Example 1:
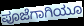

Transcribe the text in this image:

ಪೂಜೆಗಾಗಿಯೂ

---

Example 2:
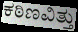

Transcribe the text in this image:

ಕಠಿಣವಿತ್ತು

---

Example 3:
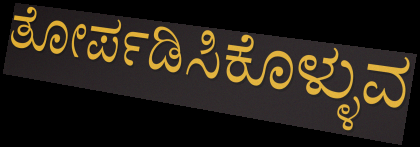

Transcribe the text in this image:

ತೋರ್ಪಡಿಸಿಕೊಳ್ಳುವ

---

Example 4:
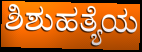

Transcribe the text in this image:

ಶಿಶುಹತ್ಯೆಯ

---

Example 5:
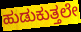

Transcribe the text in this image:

ಹುಡುಕುತ್ತಲೇ